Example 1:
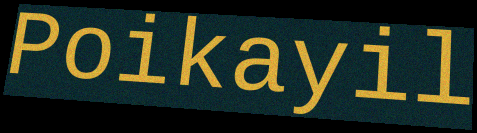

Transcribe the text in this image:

Poikayil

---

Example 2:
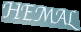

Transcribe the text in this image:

HEMAL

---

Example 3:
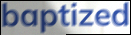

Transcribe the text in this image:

baptized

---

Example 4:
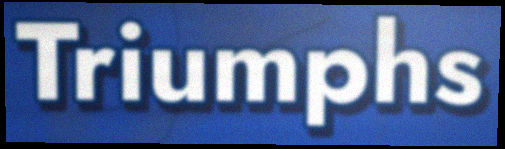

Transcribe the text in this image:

Triumphs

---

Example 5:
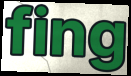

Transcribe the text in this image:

fing